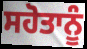
ਸਹੋਤਾਨੂੰ